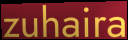
zuhaira